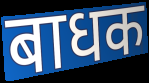
बाधक